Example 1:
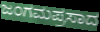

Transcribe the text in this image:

ಜಂಗಮಪ್ರಸಾದ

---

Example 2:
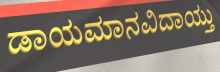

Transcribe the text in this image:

ಡಾಯಮಾನವಿದಾಯ್ತು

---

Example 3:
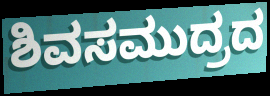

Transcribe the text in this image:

ಶಿವಸಮುದ್ರದ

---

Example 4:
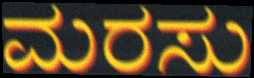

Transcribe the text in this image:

ಮರಸು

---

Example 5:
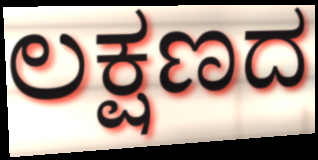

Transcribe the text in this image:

ಲಕ್ಷಣದ